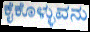
ಕೈಕೊಳ್ಳುವನು